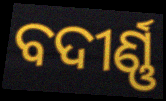
ବଦୀର୍ଣ୍ଣ